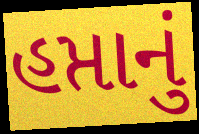
હપ્તાનું